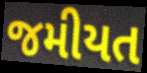
જમીયત